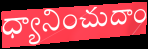
ధ్యానించుదాం